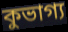
কুভাগ্য